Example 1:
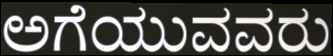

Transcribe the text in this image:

ಅಗೆಯುವವರು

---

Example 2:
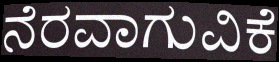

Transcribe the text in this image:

ನೆರವಾಗುವಿಕೆ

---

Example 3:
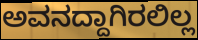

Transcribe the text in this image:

ಅವನದ್ದಾಗಿರಲಿಲ್ಲ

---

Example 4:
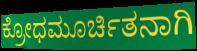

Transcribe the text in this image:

ಕ್ರೋಧಮೂರ್ಚಿತನಾಗಿ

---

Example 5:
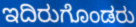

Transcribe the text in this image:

ಇದಿರುಗೊಂಡರು